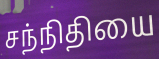
சந்நிதியை